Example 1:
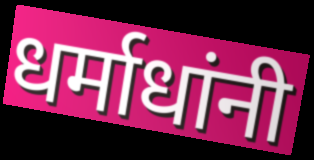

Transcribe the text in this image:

धर्माधांनी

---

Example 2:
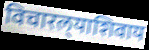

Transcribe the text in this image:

विचारल्याशिवाय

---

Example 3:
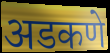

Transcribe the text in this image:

अडकणे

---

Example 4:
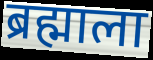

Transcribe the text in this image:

ब्रह्माला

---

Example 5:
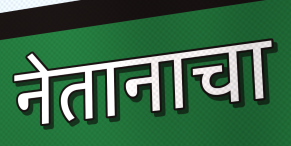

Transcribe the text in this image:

नेतानाचा